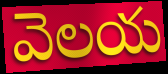
వెలయ